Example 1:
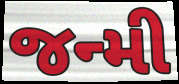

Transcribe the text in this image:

જન્મી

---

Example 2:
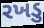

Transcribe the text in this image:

રખડુ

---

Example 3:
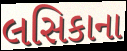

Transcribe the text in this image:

લસિકાના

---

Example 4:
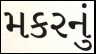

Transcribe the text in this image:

મકરનું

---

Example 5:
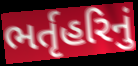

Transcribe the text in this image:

ભર્તૃહરિનું